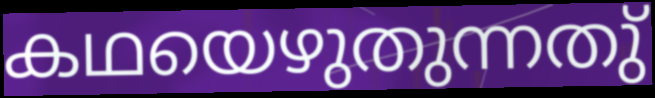
കഥയെഴുതുന്നതു്